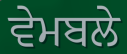
ਵੇਮਬਲੇ